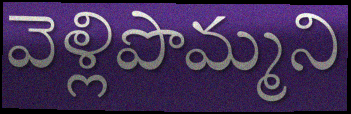
వెళ్లిపొమ్మని